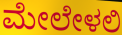
ಮೇಲೇಳಲಿ